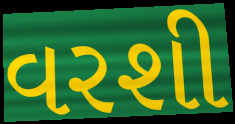
વરશી